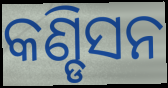
କଣ୍ଡିସନ